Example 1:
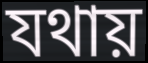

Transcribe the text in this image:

যথায়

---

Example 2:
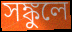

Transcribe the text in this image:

সঙ্কুলে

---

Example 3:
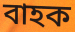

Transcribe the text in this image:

বাহক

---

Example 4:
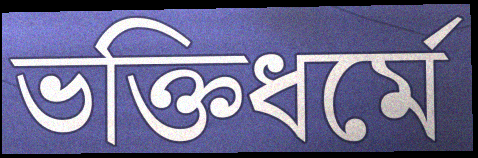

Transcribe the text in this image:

ভক্তিধর্মে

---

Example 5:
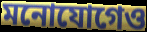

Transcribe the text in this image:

মনোযোগেও